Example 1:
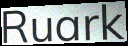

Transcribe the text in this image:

Ruark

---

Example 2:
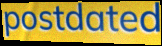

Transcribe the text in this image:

postdated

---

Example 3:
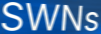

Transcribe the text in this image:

SWNs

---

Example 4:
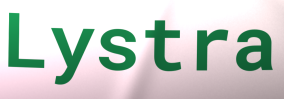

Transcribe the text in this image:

Lystra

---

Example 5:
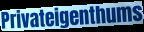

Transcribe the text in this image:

Privateigenthums